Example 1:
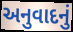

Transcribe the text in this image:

અનુવાદનું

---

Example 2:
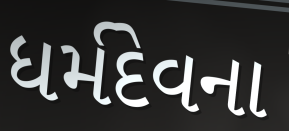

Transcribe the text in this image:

ધર્મદેવના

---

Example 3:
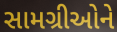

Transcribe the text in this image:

સામગ્રીઓને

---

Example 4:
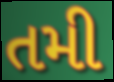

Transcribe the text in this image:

તમી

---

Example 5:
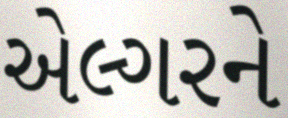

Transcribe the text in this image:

એલ્ગરને